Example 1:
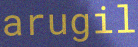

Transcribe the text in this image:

arugil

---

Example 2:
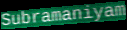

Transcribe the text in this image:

Subramaniyam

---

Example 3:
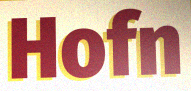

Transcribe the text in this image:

Hofn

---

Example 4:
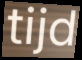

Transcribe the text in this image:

tijd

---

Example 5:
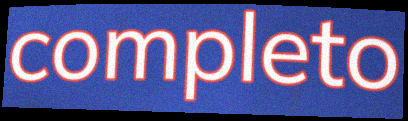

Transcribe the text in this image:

completo